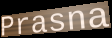
Prasna